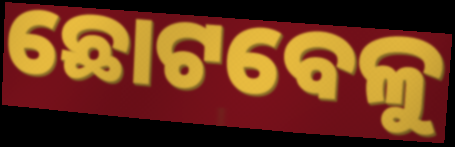
ଛୋଟବେଳୁ